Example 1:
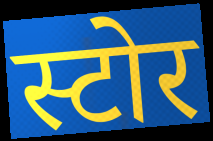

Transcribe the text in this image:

स्टोर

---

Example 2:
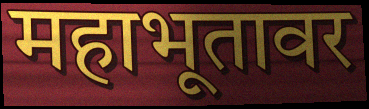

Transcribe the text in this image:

महाभूतावर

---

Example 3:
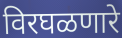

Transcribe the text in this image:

विरघळणारे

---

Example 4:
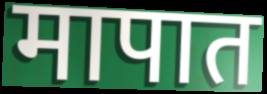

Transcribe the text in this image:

मापात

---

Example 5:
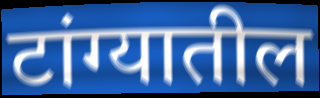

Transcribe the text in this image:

टांग्यातील